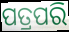
ପତ୍ରପରି